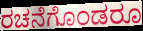
ರಚನೆಗೊಂಡರೂ